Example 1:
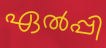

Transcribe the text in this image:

ഏൽപ്പി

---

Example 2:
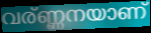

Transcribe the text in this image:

വര്ണ്ണനയാണ്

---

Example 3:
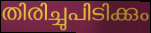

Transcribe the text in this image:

തിരിച്ചുപിടിക്കും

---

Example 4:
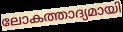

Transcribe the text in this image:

ലോകത്താദ്യമായി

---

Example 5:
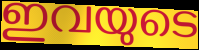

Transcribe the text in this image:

ഇവയുടെ